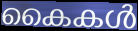
കൈകൾ